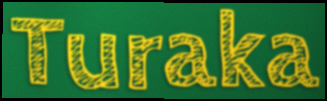
Turaka